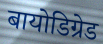
बायोडिग्रेड